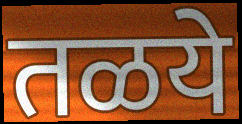
तळये